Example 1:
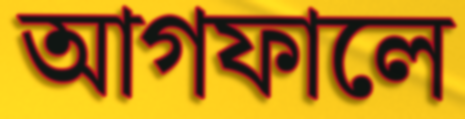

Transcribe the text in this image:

আগফালে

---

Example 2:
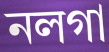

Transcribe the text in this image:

নলগা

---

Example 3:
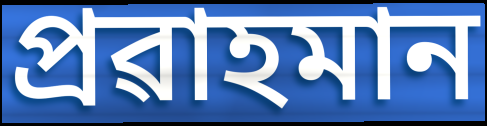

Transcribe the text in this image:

প্ৰৱাহমান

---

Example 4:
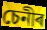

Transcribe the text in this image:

চেনীৰ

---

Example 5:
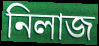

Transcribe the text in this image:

নিলাজ